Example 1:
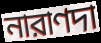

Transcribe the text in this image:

নারাণদা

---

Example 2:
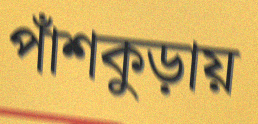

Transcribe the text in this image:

পাঁশকুড়ায়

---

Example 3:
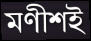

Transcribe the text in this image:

মণীশই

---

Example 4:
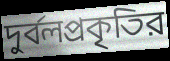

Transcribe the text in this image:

দুর্বলপ্রকৃতির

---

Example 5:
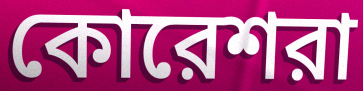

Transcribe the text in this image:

কোরেশরা